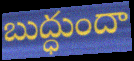
బుద్ధుందా